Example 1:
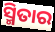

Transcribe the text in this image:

ସ୍ମିତାର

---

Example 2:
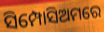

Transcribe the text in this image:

ସିମ୍ପୋସିଅମରେ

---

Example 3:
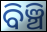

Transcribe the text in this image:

ବିଞ୍ଚି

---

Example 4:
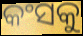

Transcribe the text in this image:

କଂସକୁ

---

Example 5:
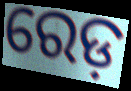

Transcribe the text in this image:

ରେଡ଼